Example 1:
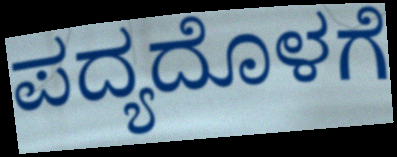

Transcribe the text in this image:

ಪದ್ಯದೊಳಗೆ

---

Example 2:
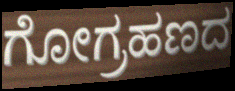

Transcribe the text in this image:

ಗೋಗ್ರಹಣದ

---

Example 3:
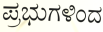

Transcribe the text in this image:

ಪ್ರಭುಗಳಿಂದ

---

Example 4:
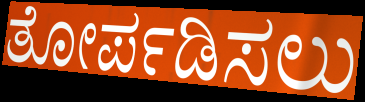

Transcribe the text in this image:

ತೋರ್ಪಡಿಸಲು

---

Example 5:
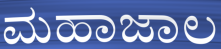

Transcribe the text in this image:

ಮಹಾಜಾಲ